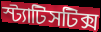
স্ট্যাটিসটিক্স